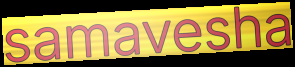
samavesha